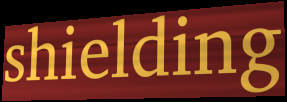
shielding